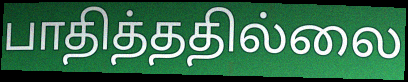
பாதித்ததில்லை